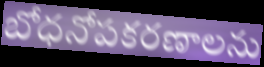
బోధనోపకరణాలను